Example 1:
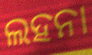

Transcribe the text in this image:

ଲହନା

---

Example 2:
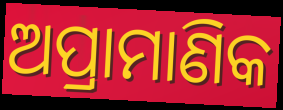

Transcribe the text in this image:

ଅପ୍ରାମାଣିକ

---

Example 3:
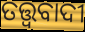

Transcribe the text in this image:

ତତ୍ତ୍ଵବାଦୀ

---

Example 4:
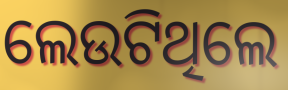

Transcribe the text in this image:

ଲେଉଟିଥିଲେ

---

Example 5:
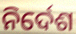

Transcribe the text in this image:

ନିର୍ଦେଶ